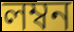
লম্বন